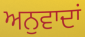
ਅਨੁਵਾਦਾਂ